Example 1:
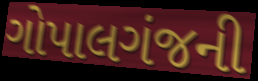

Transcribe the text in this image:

ગોપાલગંજની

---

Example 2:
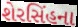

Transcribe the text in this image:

શેરસિંહના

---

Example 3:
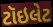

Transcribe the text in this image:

ટૉઇલેટ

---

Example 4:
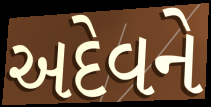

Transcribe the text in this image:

અદેવને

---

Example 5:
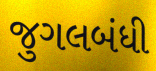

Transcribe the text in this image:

જુગલબંધી